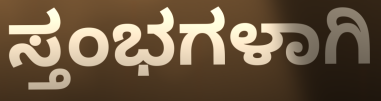
ಸ್ತಂಭಗಳಾಗಿ